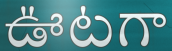
ఊటగా